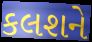
કલશને